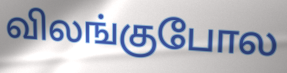
விலங்குபோல